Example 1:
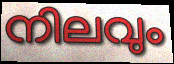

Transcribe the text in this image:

നിലവും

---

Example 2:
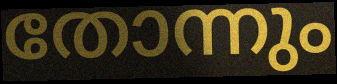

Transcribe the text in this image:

തോന്നും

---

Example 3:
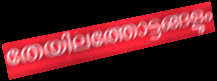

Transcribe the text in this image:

തേയിലത്തോട്ടങ്ങളും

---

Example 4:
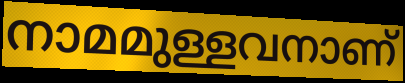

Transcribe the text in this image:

നാമമുള്ളവനാണ്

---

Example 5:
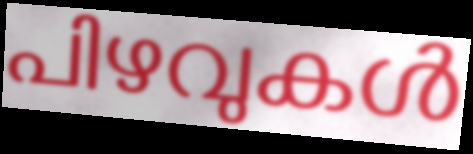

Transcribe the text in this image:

പിഴവുകൾ